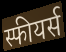
स्फीयर्स